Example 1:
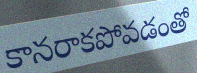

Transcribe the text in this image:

కానరాకపోవడంతో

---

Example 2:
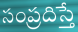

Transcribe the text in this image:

సంప్రదిస్తే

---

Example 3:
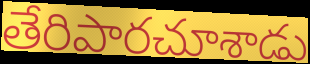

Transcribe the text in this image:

తేరిపారచూశాడు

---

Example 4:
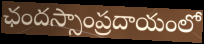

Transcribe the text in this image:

ఛందస్సాంప్రదాయంలో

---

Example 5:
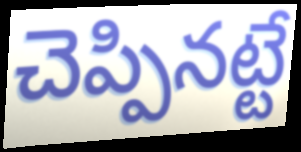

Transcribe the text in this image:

చెప్పినట్టే